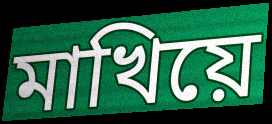
মাখিয়ে